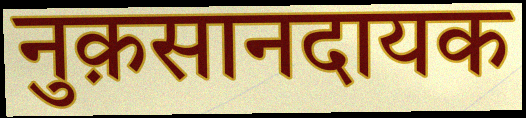
नुक़सानदायक